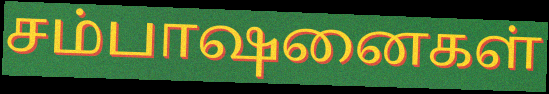
சம்பாஷனைகள்